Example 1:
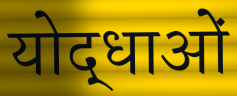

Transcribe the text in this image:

योद्धाओं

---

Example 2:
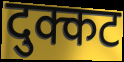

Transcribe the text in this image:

दुक्कट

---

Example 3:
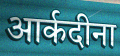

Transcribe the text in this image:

आर्कदीना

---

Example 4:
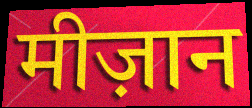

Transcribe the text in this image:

मीज़ान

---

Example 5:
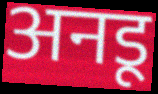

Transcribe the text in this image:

अनडू